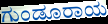
ಗುಂಡೂರಾಯ